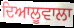
ਦਿਆਲੂਵਾਲਾ